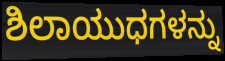
ಶಿಲಾಯುಧಗಳನ್ನು